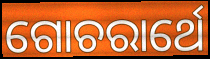
ଗୋଚରାର୍ଥେ